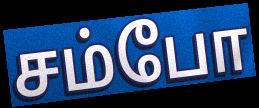
சம்போ